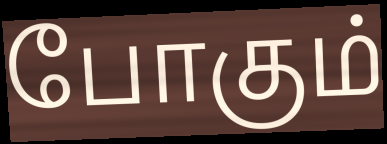
போகும்